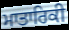
ਮਾਤਾਰਿਕੀ